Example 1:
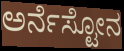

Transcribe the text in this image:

ಅರ್ನೆಸ್ಟೋನ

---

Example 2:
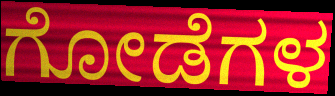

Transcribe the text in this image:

ಗೋಡೆಗಳ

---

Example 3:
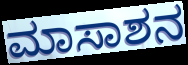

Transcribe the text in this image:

ಮಾಸಾಶನ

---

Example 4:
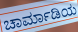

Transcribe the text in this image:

ಚಾರ್ಮಾಡಿಯ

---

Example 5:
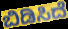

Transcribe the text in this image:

ಬಿಡಿಸಿದೆ